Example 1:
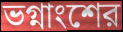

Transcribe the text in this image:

ভগ্নাংশের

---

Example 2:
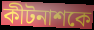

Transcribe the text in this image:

কীটনাশকে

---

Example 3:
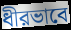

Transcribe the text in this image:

ধীরভাবে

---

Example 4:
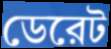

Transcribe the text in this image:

ডেরেট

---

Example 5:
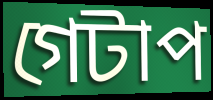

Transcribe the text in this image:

গেটাপ